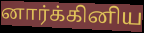
னார்க்கினிய